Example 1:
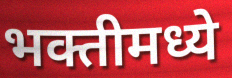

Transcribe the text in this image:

भक्तीमध्ये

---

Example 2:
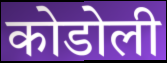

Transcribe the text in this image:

कोडोली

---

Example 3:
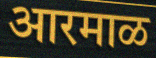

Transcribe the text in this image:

आरमाळ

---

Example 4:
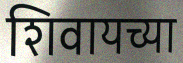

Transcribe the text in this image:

शिवायच्या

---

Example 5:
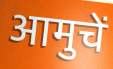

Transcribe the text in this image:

आमुचें